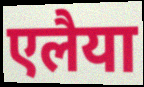
एलैया